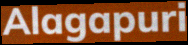
Alagapuri